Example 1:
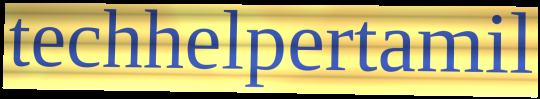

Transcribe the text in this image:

techhelpertamil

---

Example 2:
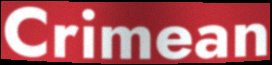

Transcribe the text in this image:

Crimean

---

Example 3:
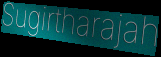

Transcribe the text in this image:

Sugirtharajah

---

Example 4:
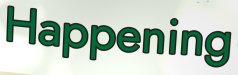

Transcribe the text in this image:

Happening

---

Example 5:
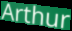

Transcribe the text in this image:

Arthur